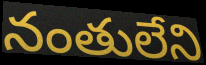
నంతులేని